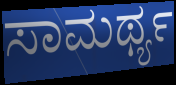
ಸಾಮರ್ಥ್ಯ